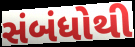
સંબંધોથી